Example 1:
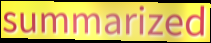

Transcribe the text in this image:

summarized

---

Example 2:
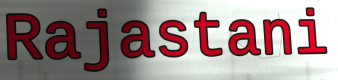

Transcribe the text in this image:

Rajastani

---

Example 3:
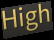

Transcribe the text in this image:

High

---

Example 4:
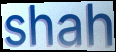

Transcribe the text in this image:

shah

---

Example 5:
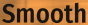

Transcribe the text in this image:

Smooth